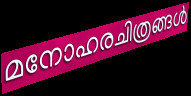
മനോഹരചിത്രങ്ങൾ